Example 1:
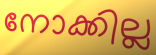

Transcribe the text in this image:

നോക്കില്ല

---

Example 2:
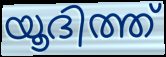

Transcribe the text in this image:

യൂദിത്ത്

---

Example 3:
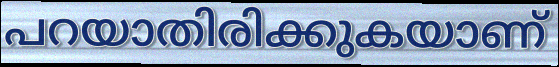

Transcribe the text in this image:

പറയാതിരിക്കുകയാണ്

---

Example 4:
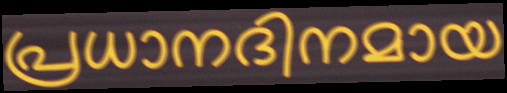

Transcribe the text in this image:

പ്രധാനദിനമായ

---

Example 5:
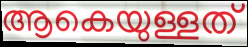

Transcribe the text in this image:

ആകെയുള്ളത്